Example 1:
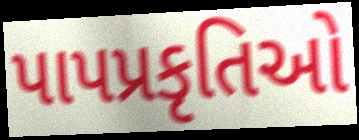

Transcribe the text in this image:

પાપપ્રકૃતિઓ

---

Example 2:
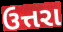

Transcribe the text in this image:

ઉત્તરા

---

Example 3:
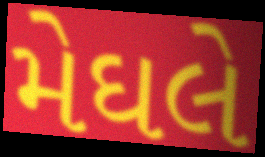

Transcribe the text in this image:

મેઘલે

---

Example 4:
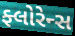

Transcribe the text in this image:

ફ્લોરેન્સ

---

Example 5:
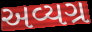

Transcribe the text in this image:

અવ્યગ્ર